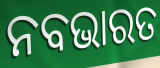
ନବଭାରତ